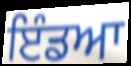
ਇੰਡਆ